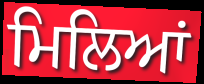
ਮਿਲਿਆਂ